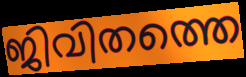
ജിവിതത്തെ